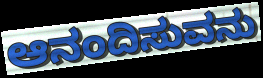
ಆನಂದಿಸುವನು